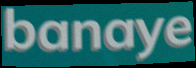
banaye